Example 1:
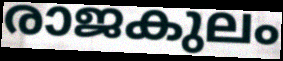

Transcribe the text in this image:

രാജകുലം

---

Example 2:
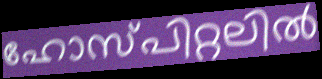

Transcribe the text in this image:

ഹോസ്പിറ്റലിൽ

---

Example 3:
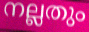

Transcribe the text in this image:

നല്ലതും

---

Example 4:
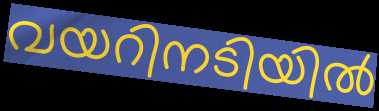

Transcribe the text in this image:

വയറിനടിയിൽ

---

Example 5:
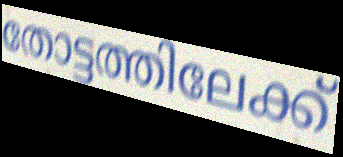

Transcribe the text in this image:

തോട്ടത്തിലേക്ക്